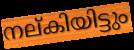
നല്കിയിട്ടും